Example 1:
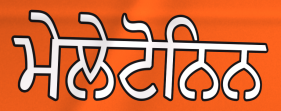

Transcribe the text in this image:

ਮੇਲੇਟੋਨਿਨ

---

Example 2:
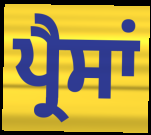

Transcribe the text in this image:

ਪ੍ਰੈਸਾਂ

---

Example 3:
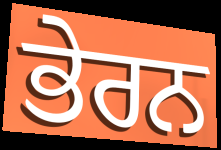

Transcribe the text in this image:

ਭੇਰਨ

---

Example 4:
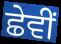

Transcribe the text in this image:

ਛੇਵੀਂ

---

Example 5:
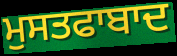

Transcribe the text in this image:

ਮੁਸਤਫਾਬਾਦ